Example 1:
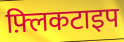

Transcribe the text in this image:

फ़्लिकटाइप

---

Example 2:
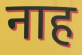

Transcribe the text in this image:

नाह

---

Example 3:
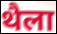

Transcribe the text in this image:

थैला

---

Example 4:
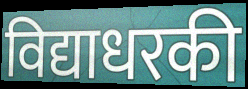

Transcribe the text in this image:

विद्याधरकी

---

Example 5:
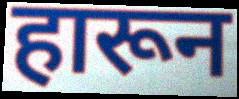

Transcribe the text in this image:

हारून